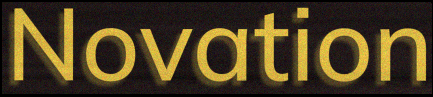
Novation